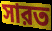
সারত